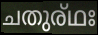
ചതുര്ഥഃ